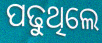
ପଢୁଥିଲେ